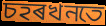
চহৰখনতে